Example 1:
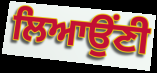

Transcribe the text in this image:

ਲਿਆਉਂਣੀ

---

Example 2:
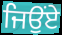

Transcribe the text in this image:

ਜਿਉਂਏ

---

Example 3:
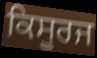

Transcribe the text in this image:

ਕਿਸੂਰਜ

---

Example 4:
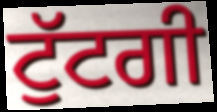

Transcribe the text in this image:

ਟੁੱਟਗੀ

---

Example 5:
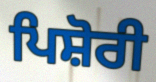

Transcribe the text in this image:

ਪਿਸ਼ੋਰੀ